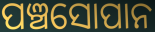
ପଞ୍ଚସୋପାନ